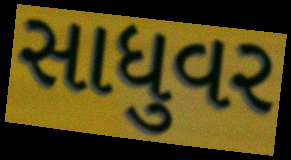
સાધુવર